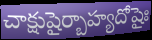
చాక్షుషైర్బాహ్యదోషైః